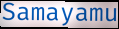
Samayamu